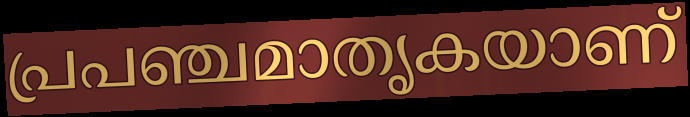
പ്രപഞ്ചമാതൃകയാണ്